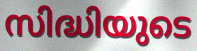
സിദ്ധിയുടെ